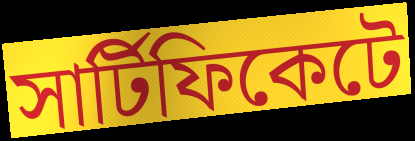
সার্টিফিকেটে